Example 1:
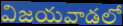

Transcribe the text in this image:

విజయవాడలో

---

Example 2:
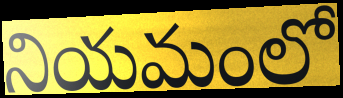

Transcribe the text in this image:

నియమంలో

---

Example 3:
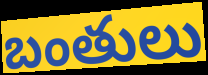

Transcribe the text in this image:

బంతులు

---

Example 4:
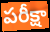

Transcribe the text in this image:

పరీక్షా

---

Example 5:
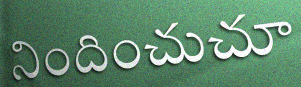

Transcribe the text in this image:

నిందించుచూ